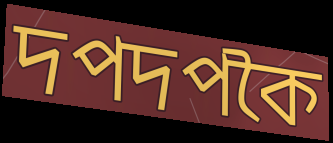
দপদপকৈ